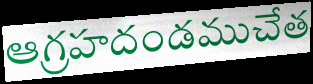
ఆగ్రహదండముచేత